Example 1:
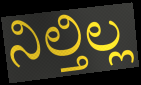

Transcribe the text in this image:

ನಿಲ್ತಿಲ್ಲ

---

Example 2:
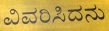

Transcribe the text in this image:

ವಿವರಿಸಿದನು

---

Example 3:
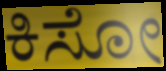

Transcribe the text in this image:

ಕಿಸೋ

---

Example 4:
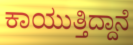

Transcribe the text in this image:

ಕಾಯುತ್ತಿದ್ದಾನೆ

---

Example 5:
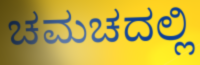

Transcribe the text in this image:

ಚಮಚದಲ್ಲಿ